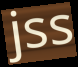
jss